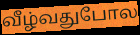
வீழ்வதுபோல